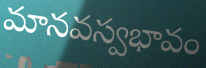
మానవస్వభావం